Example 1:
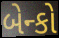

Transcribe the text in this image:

બેન્કો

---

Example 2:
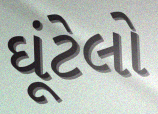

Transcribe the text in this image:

ઘૂંટેલો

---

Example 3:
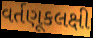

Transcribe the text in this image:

વર્તણૂકલક્ષી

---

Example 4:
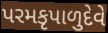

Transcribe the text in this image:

પરમકૃપાળુદેવે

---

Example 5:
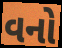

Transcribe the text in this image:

વનો